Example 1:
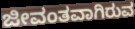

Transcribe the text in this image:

ಜೀವಂತವಾಗಿರುವ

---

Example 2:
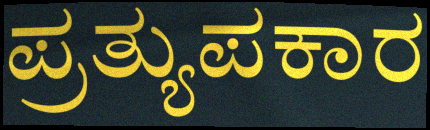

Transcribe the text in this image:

ಪ್ರತ್ಯುಪಕಾರ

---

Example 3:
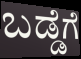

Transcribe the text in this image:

ಬಡ್ಡೆಗೆ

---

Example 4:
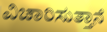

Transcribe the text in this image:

ವಿಚಾರಿಸುತ್ತಾನೆ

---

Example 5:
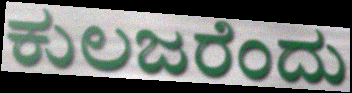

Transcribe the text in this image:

ಕುಲಜರೆಂದು